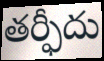
తర్ఫీదు